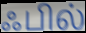
ஃபில்